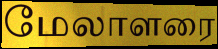
மேலாளரை